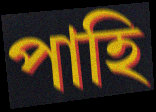
পাহি